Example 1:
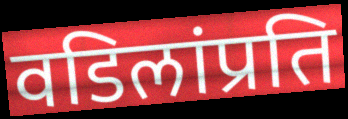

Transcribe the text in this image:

वडिलांप्रति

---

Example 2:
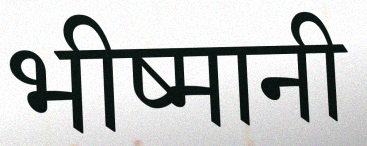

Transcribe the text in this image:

भीष्मानी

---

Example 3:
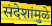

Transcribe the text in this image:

संदेशांमुळे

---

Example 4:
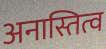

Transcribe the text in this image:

अनास्तित्व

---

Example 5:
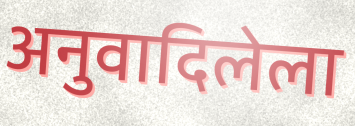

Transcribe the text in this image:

अनुवादिलेला